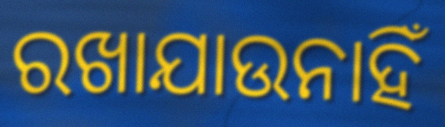
ରଖାଯାଉନାହିଁ